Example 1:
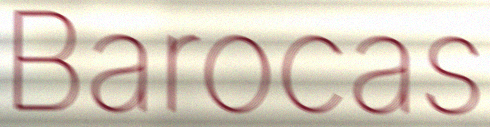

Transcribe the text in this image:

Barocas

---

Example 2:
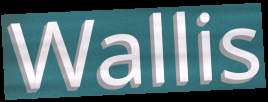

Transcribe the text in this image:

Wallis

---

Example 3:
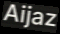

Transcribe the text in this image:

Aijaz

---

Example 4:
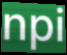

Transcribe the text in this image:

npi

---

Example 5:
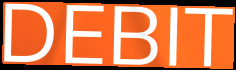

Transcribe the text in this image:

DEBIT